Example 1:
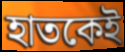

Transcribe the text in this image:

হাতকেই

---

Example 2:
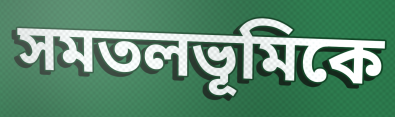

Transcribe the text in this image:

সমতলভূমিকে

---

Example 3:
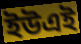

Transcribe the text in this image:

ইউএই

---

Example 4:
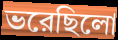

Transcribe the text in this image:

ভরেছিলো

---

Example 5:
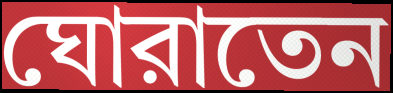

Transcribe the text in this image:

ঘোরাতেন